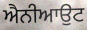
ਐਨੀਆਉਟ